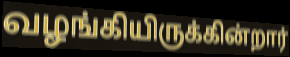
வழங்கியிருக்கின்றார்